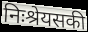
निःश्रेयसकी